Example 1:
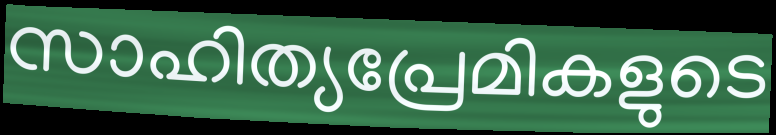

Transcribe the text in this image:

സാഹിത്യപ്രേമികളുടെ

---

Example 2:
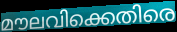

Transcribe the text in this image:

മൗലവിക്കെതിരെ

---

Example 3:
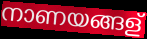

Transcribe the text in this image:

നാണയങ്ങള്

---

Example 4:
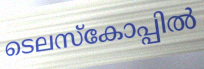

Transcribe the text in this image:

ടെലസ്കോപ്പിൽ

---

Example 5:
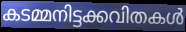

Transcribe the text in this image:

കടമ്മനിട്ടക്കവിതകൾ